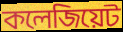
কলেজিয়েট